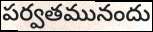
పర్వతమునందు